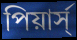
পিয়ার্স্